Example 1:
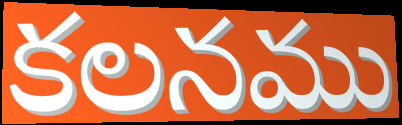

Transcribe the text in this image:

కలనము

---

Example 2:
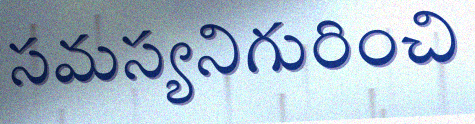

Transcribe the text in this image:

సమస్యనిగురించి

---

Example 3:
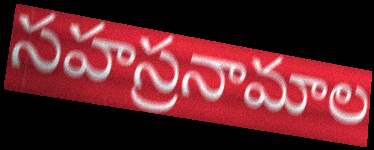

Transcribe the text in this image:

సహస్రనామాల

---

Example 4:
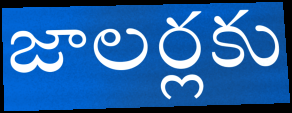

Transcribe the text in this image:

జాలర్లకు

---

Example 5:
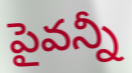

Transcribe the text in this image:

పైవన్నీ